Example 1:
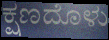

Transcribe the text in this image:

ಕ್ಷಣದೊಳು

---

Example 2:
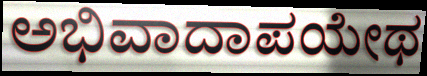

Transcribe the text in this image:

ಅಭಿವಾದಾಪಯೇಥ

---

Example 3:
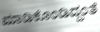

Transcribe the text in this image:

ಮಾಡಿಕೊಂಡಿದ್ದಂತೆ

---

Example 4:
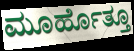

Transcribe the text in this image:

ಮೂರ್ಹೊತ್ತೂ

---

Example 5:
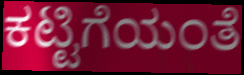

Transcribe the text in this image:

ಕಟ್ಟಿಗೆಯಂತೆ